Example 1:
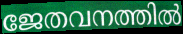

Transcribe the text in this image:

ജേതവനത്തിൽ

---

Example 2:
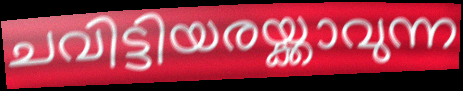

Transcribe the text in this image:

ചവിട്ടിയരയ്ക്കാവുന്ന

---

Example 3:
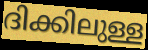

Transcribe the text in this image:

ദിക്കിലുള്ള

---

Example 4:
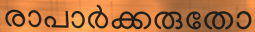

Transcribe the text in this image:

രാപാർക്കരുതോ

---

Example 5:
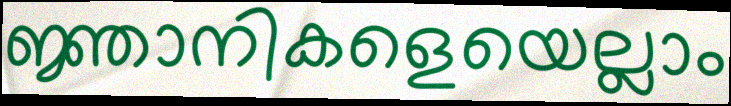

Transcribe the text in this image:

ജ്ഞാനികളെയെല്ലാം